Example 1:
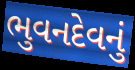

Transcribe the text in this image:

ભુવનદેવનું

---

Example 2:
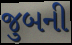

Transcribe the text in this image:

જુબની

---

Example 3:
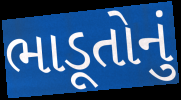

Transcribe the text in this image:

ભાડૂતોનું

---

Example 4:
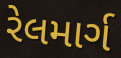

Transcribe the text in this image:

રેલમાર્ગ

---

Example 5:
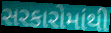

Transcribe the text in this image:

સરકારોમાંથી